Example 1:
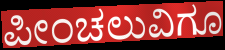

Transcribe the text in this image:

ಪೀಂಚಲುವಿಗೂ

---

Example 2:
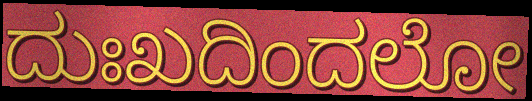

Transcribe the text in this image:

ದುಃಖದಿಂದಲೋ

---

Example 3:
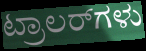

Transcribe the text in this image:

ಟ್ರಾಲರ್‌ಗಳು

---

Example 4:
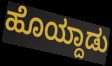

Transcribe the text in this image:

ಹೊಯ್ದಾಡು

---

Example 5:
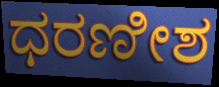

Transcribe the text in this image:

ಧರಣೀಶ